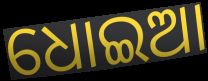
ଧୋଇଆ